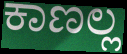
ಕಾಣಲ್ಲ